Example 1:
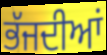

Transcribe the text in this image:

ਭੱਜਦੀਆਂ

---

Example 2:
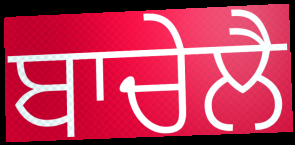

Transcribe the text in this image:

ਬਾਚੇਲੈ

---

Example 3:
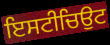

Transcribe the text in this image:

ਇਸਟੀਚਿਉਟ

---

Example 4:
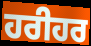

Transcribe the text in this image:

ਹਰੀਹਰ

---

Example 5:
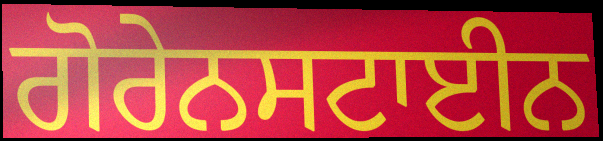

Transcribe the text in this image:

ਗੋਰੇਨਸਟਾਈਨ